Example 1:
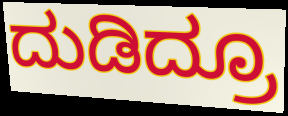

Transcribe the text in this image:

ದುಡಿದ್ರೂ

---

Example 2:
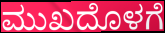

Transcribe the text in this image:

ಮುಖದೊಳಗೆ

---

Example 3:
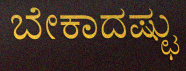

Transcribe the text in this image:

ಬೇಕಾದಷ್ಟು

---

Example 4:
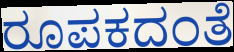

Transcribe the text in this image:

ರೂಪಕದಂತೆ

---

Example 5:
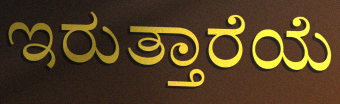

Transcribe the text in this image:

ಇರುತ್ತಾರೆಯೆ